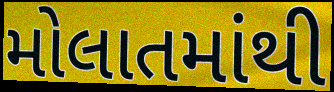
મોલાતમાંથી